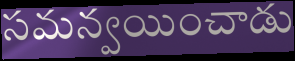
సమన్వయించాడు